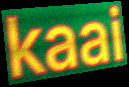
kaai